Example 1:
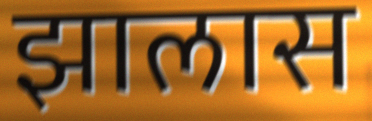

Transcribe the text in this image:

झालास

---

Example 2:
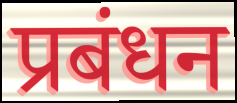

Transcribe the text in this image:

प्रबंधन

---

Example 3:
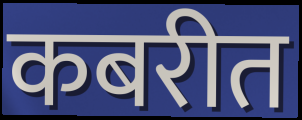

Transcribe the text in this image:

कबरीत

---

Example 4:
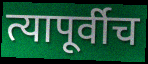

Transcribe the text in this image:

त्यापूर्वीच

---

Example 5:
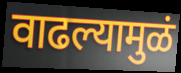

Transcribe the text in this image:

वाढल्यामुळं